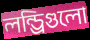
লন্ড্রিগুলো